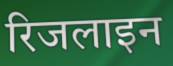
रिजलाइन